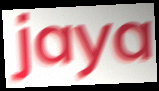
jaya